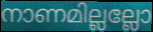
നാണമില്ലല്ലോ